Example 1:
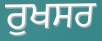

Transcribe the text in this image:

ਰੁਖਸਰ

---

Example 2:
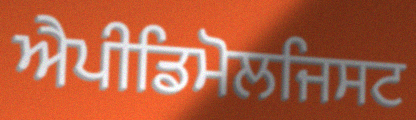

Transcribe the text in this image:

ਐਪੀਡਿਮੋਲਜਿਸਟ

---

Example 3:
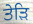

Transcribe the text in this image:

ਤੇੜਿ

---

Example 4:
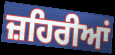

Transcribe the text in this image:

ਜ਼ਹਿਰੀਆਂ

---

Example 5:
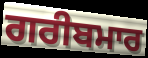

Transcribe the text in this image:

ਗਰੀਬਮਾਰ